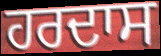
ਹਰਦਾਸ